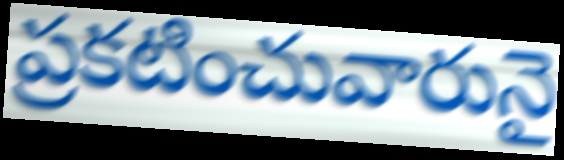
ప్రకటించువారునై